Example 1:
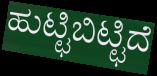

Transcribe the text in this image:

ಹುಟ್ಟಿಬಿಟ್ಟಿದೆ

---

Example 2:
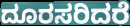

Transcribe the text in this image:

ದೂರಸರಿದರೆ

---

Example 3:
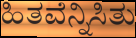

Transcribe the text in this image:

ಹಿತವೆನ್ನಿಸಿತು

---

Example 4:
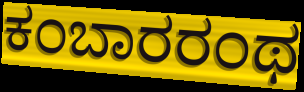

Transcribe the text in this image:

ಕಂಬಾರರಂಥ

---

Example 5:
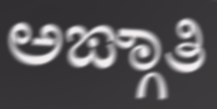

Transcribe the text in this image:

ಅಙ್ಗಾತಿ